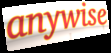
anywise